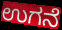
ಉಗನೆ